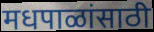
मधपाळांसाठी